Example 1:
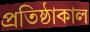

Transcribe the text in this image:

প্রতিষ্ঠাকাল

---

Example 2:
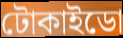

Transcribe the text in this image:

টোকাইডো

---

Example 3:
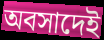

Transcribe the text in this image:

অবসাদেই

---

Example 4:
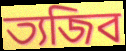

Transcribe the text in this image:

ত্যজিব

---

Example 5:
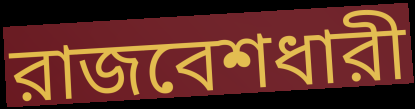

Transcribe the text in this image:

রাজবেশধারী